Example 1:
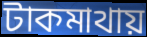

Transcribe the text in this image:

টাকমাথায়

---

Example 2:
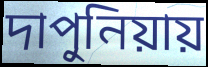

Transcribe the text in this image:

দাপুনিয়ায়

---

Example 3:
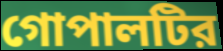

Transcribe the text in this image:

গোপালটির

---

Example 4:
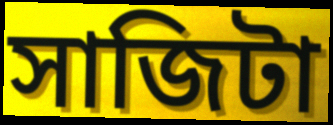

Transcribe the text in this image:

সাজিটা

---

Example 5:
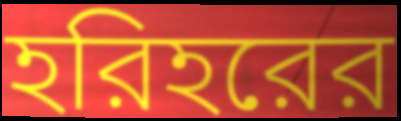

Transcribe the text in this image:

হরিহরের